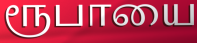
ரூபாயை